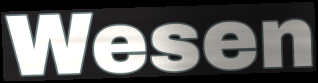
Wesen